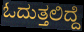
ಓದುತ್ತಲಿದ್ದೆ